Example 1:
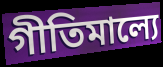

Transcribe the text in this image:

গীতিমাল্যে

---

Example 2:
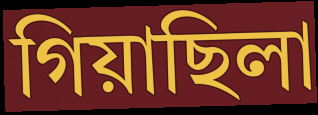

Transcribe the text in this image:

গিয়াছিলা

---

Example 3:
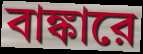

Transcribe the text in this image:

বাঙ্কারে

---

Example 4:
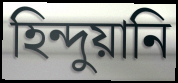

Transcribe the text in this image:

হিন্দুয়ানি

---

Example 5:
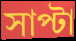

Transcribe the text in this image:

সাপ্টা